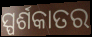
ସ୍ପର୍ଶକାତର